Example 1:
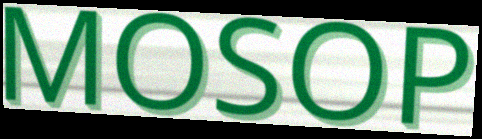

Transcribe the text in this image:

MOSOP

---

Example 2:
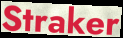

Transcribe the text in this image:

Straker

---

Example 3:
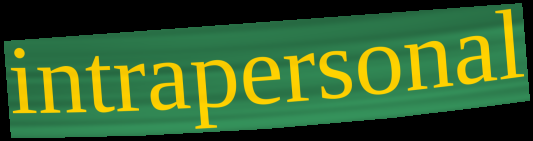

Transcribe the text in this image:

intrapersonal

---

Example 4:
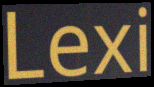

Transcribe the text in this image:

Lexi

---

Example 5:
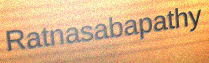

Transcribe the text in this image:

Ratnasabapathy